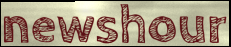
newshour